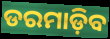
ଡରମାଡ଼ିବ